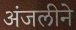
अंजलीने